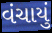
વંચાયું